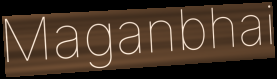
Maganbhai